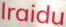
Iraidu